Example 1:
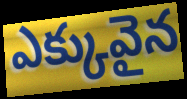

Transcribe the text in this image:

ఎక్కువైన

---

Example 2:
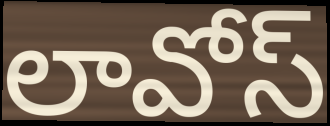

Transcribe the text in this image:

లావోస్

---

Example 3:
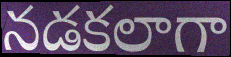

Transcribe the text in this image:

నడకలాగా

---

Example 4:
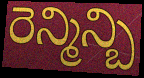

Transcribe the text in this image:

రెన్మిన్బి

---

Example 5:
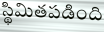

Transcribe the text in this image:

స్థిమితపడింది